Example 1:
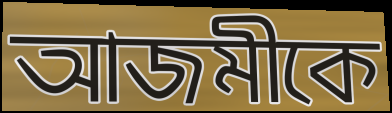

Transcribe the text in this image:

আজমীকে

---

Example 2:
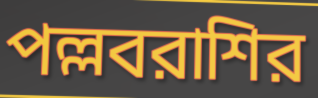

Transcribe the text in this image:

পল্লবরাশির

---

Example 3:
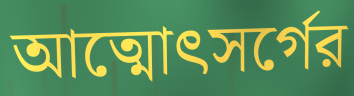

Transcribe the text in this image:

আত্মোৎসর্গের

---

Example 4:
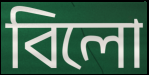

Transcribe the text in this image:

বিলো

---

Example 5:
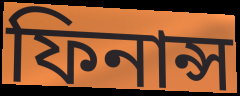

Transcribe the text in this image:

ফিনান্স